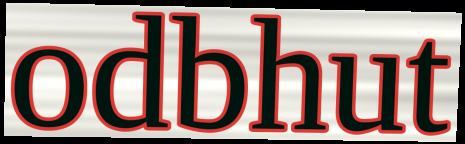
odbhut